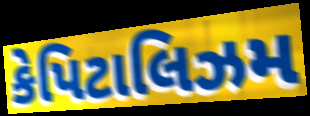
કેપિટાલિઝમ